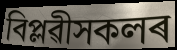
বিপ্লৱীসকলৰ